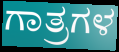
ಗಾತ್ರಗಳ